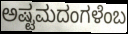
ಅಷ್ಟಮದಂಗಳೆಂಬ